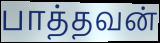
பாத்தவன்